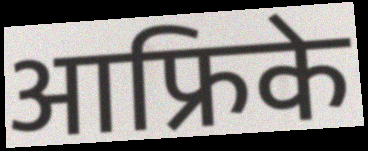
आफ्रिके